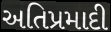
અતિપ્રમાદી